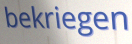
bekriegen